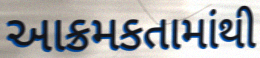
આક્રમકતામાંથી